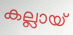
കല്ലായ്